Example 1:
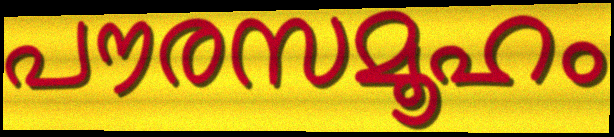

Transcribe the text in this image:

പൗരസമൂഹം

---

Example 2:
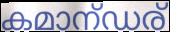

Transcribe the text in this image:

കമാന്ഡര്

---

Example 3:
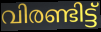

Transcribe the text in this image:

വിരണ്ടിട്ട്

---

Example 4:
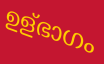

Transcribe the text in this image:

ഉള്ഭാഗം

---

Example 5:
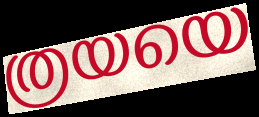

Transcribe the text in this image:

ത്രയയെ